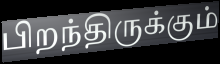
பிறந்திருக்கும்